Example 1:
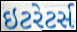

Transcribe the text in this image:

ઇટરેટર્સ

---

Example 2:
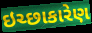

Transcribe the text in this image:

ઇચ્છાકારેણ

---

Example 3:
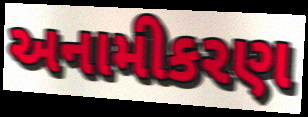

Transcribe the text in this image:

અનામીકરણ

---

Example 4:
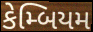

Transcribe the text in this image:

કેમ્બિયમ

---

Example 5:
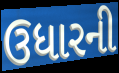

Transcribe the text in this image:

ઉધારની